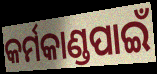
କର୍ମକାଣ୍ଡପାଇଁ